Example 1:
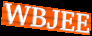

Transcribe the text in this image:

WBJEE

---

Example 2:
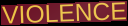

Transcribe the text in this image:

VIOLENCE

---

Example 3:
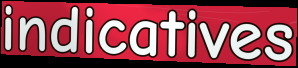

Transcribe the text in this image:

indicatives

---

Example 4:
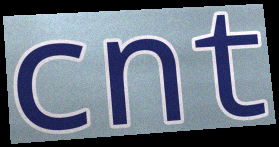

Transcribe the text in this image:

cnt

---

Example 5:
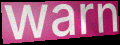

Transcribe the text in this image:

warn